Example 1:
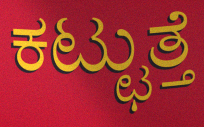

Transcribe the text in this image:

ಕಟ್ಟುತ್ತೆ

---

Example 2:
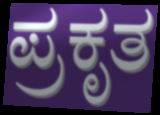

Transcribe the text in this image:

ಪ್ರಕೃತ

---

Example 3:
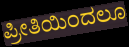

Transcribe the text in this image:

ಪ್ರೀತಿಯಿಂದಲೂ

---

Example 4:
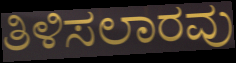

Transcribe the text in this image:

ತಿಳಿಸಲಾರವು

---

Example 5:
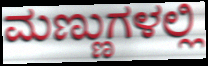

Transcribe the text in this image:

ಮಣ್ಣುಗಳಲ್ಲಿ